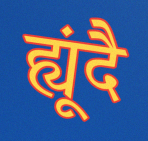
ह्यूंदै